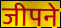
जीपने